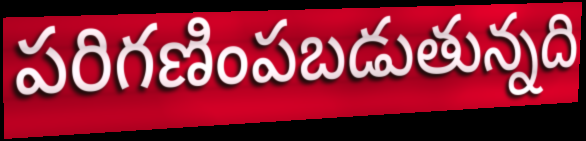
పరిగణింపబడుతున్నది